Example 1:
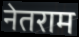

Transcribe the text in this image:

नेतराम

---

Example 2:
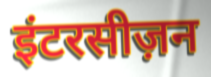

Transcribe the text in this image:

इंटरसीज़न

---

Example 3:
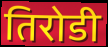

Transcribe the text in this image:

तिरोडी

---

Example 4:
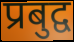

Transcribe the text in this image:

प्रबुद्व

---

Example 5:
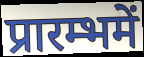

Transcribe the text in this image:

प्रारम्भमें